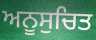
ਅਨੂਸੁਚਿਤ